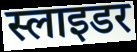
स्लाइडर